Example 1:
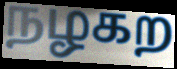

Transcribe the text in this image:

நழகற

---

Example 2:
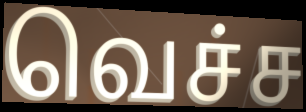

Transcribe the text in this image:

வெச்ச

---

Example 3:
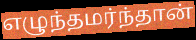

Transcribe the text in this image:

எழுந்தமர்ந்தான்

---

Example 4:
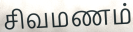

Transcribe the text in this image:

சிவமணம்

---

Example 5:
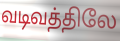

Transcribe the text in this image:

வடிவத்திலே